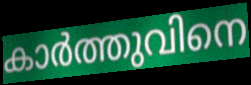
കാർത്തുവിനെ